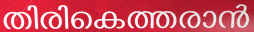
തിരികെത്തരാൻ